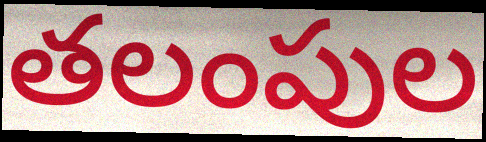
తలంపుల